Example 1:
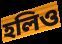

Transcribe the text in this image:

হলিও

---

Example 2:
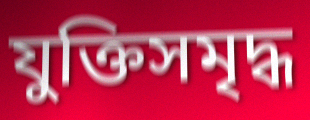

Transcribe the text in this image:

যুক্তিসমৃদ্ধ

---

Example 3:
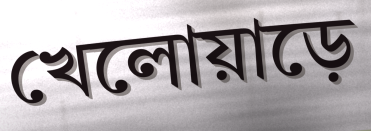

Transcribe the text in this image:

খেলোয়াড়ে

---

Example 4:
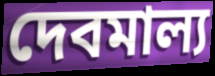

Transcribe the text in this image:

দেবমাল্য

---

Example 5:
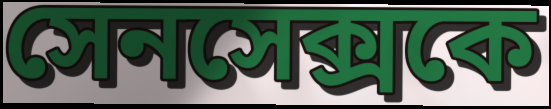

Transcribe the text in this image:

সেনসেক্সকে